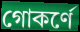
গোকর্ণে